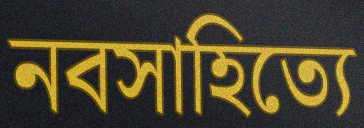
নবসাহিত্যে